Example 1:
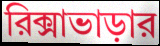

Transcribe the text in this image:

রিক্সাভাড়ার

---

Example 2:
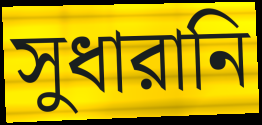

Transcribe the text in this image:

সুধারানি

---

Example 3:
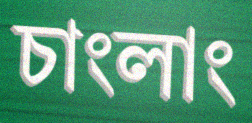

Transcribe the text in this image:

চাংলাং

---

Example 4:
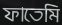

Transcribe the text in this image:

ফাতেমি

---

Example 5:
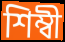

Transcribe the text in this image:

শিম্বী